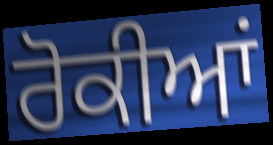
ਰੋਕੀਆਂ